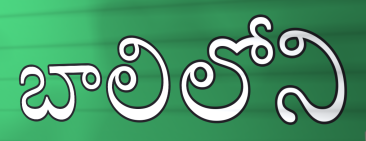
బాలిలోని